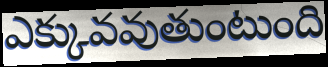
ఎక్కువవుతుంటుంది